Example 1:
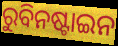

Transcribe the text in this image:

ରୁବିନଷ୍ଟାଇନ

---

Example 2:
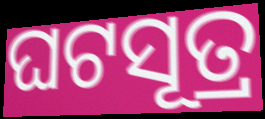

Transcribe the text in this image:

ଘଟସୂତ୍ର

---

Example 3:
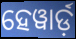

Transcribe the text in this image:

ହେୱାର୍ଡ଼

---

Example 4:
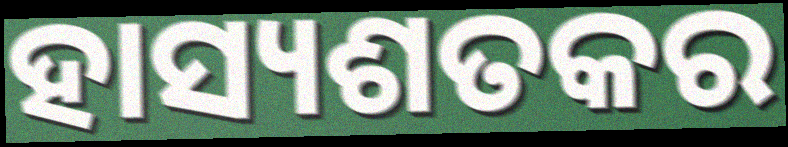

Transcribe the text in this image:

ହାସ୍ୟଶତକର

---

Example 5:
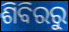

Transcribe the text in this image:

ଶିବିରରୁ